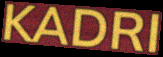
KADRI